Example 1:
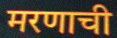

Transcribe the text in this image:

मरणाची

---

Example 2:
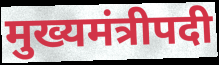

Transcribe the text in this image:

मुख्यमंत्रीपदी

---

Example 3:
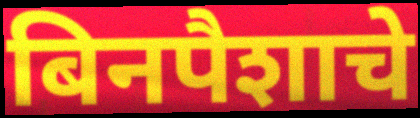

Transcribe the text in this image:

बिनपैशाचे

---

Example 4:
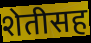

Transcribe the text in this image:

शेतीसह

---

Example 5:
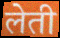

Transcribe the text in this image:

लेती